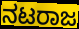
ನಟರಾಜ